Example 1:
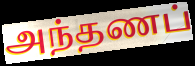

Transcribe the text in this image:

அந்தணப்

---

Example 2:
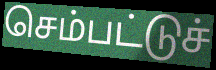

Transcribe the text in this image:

செம்பட்டுச்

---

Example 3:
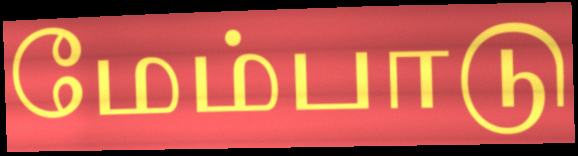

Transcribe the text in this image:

மேம்பாடு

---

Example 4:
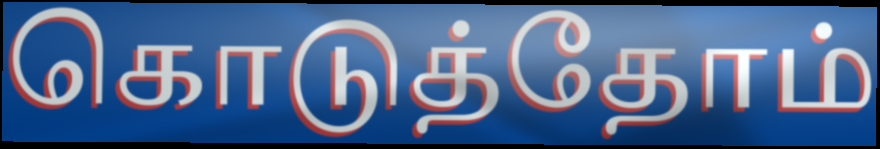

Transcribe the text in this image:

கொடுத்தோம்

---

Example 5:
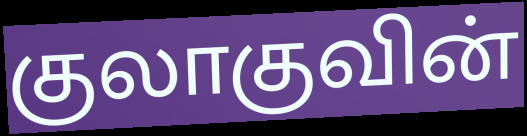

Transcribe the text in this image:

குலாகுவின்